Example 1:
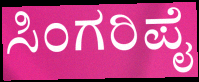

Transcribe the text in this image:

ಸಿಂಗರಿಪೈ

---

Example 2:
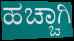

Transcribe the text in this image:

ಹಚ್ಚಾಗಿ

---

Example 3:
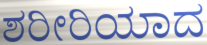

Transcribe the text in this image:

ಶರೀರಿಯಾದ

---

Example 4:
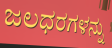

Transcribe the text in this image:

ಜಲಧರಗಳನ್ನು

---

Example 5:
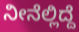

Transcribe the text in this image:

ನೀನೆಲ್ಲಿದ್ದೆ